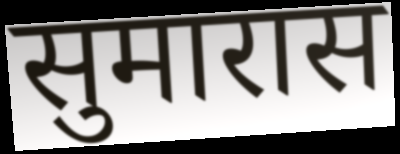
सुमारास